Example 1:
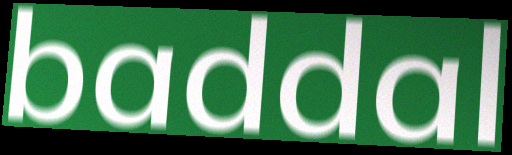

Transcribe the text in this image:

baddal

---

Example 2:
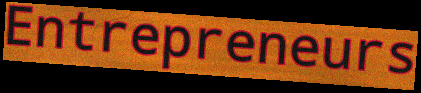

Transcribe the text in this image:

Entrepreneurs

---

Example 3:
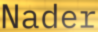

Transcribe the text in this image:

Nader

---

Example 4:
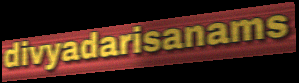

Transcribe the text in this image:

divyadarisanams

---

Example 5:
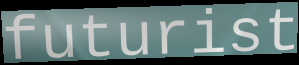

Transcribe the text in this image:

futurist